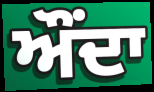
ਔਂਦਾ